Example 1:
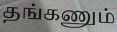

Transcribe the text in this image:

தங்கணும்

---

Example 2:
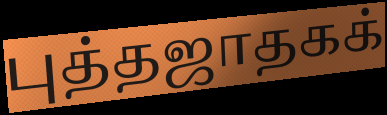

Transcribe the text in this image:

புத்தஜாதகக்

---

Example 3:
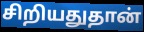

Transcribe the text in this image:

சிறியதுதான்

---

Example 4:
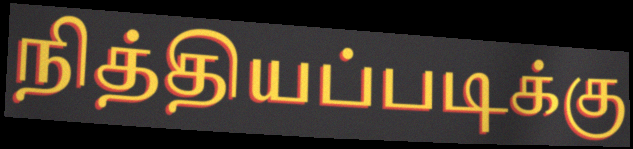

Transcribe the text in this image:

நித்தியப்படிக்கு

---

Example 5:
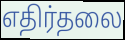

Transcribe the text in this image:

எதிர்தலை